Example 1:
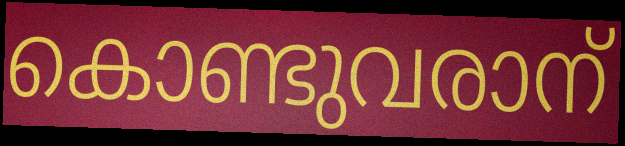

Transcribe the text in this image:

കൊണ്ടുവരാന്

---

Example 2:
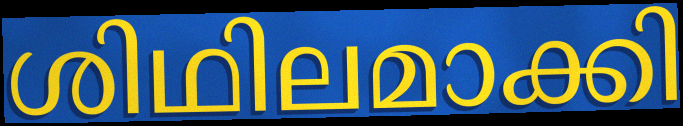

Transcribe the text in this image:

ശിഥിലമാക്കി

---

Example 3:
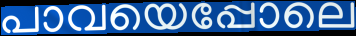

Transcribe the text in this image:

പാവയെപ്പോലെ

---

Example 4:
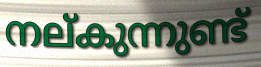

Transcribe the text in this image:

നല്കുന്നുണ്ട്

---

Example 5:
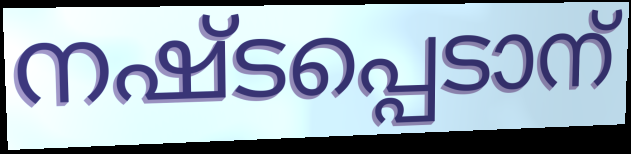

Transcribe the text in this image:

നഷ്ടപ്പെടാന്